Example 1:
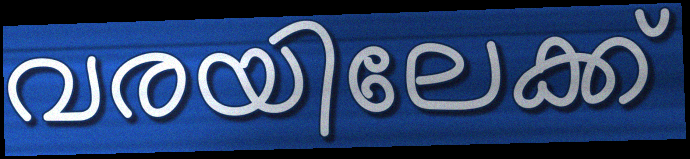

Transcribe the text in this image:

വരയിലേക്ക്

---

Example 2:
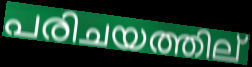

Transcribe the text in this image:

പരിചയത്തില്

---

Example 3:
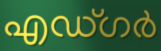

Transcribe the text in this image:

എഡ്ഗർ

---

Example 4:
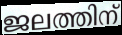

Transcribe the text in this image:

ജലത്തിന്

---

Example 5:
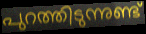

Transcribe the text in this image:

പുറത്തിടുന്നുണ്ട്